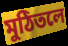
মুঠিতলে